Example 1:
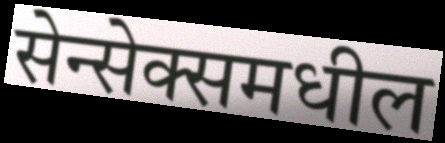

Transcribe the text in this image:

सेन्सेक्समधील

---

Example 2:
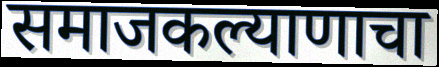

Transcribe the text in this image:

समाजकल्याणाचा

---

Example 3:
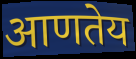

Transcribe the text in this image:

आणतेय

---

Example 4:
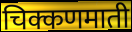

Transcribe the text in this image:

चिक्कणमाती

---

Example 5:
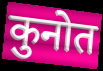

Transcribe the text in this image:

कुनोत